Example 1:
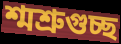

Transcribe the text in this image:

শ্মশ্রুগুচ্ছ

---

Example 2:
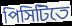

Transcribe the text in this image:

পিসিটিতে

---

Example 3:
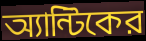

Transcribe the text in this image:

অ্যান্টিকের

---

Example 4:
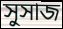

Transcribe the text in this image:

সুসাজ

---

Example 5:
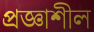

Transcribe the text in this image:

প্রজ্ঞাশীল